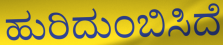
ಹುರಿದುಂಬಿಸಿದೆ